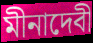
মীনাদেবী